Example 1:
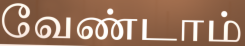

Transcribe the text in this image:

வேண்டாம்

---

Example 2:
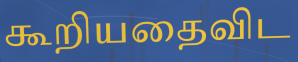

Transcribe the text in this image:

கூறியதைவிட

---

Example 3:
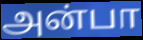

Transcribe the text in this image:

அன்பா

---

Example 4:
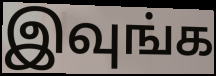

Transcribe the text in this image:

இவுங்க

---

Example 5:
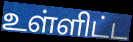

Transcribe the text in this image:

உள்ளிட்ட